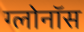
ग्लोनॉस